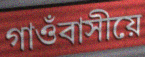
গাওঁবাসীয়ে